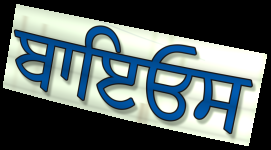
ਬਾਇਓਸ